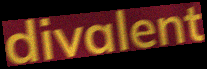
divalent